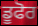
ਡੂਫੋਰ